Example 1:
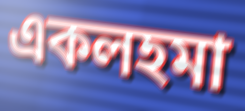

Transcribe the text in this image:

একলহমা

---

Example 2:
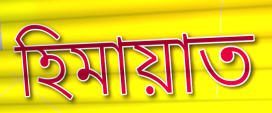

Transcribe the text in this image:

হিমায়াত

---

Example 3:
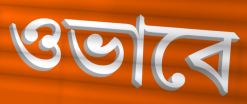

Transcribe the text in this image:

ওভাবে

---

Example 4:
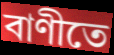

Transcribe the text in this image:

বাণীতে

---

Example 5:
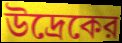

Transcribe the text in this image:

উদ্রেকের